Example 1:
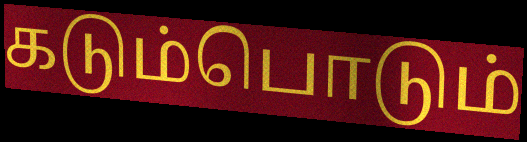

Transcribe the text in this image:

கடும்பொடும்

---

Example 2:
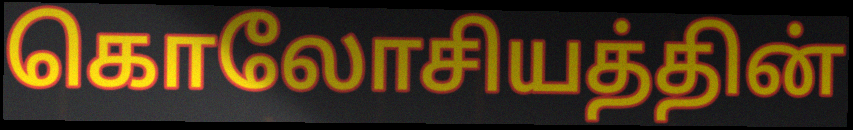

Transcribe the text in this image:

கொலோசியத்தின்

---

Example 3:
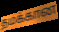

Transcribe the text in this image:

தமக்கான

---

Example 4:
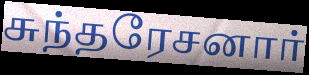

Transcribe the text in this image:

சுந்தரேசனார்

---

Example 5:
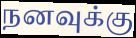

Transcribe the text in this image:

நனவுக்கு